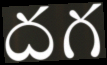
దగ